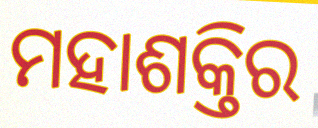
ମହାଶକ୍ତିର